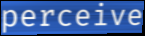
perceive